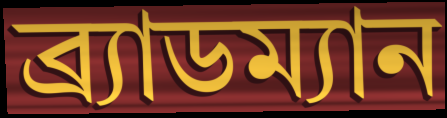
ব্র্যাডম্যান